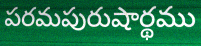
పరమపురుషార్థము